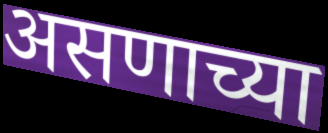
असणाच्या